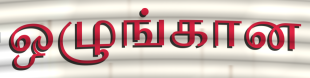
ஒழுங்கான